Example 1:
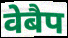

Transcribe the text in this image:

वेबैप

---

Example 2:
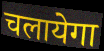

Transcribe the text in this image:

चलायेगा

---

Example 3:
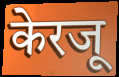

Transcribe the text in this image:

केरजू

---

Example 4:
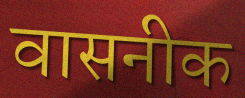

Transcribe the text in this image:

वासनीक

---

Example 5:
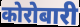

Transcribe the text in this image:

कोरोबारी